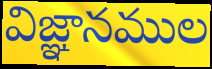
విజ్ఞానముల